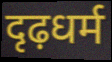
दृढ़धर्म